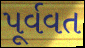
પૂર્વવત